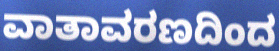
ವಾತಾವರಣದಿಂದ